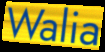
Walia